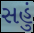
સહું